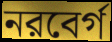
নরবের্গ